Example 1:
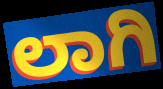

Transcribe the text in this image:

ಲಾಗಿ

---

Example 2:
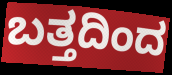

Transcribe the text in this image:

ಬತ್ತದಿಂದ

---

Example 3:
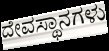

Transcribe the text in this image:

ದೇವಸ್ಥಾನಗಳು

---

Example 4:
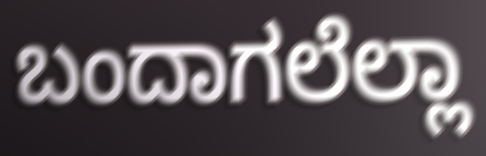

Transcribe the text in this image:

ಬಂದಾಗಲೆಲ್ಲಾ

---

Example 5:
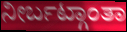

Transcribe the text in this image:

ನೀರ್ಬಟ್ಗಾಂತಾ